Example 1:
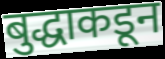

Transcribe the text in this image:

बुद्धाकडून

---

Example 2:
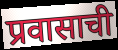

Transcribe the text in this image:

प्रवासाची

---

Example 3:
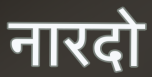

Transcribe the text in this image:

नारदो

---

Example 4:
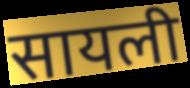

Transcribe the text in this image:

सायली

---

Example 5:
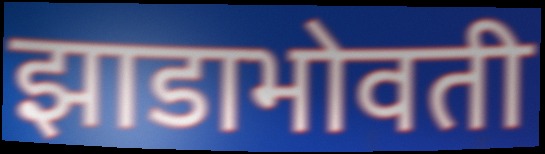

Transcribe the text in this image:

झाडाभोवती